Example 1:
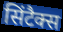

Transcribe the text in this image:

सिंटैक्स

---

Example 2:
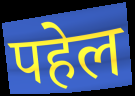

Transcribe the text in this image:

पहेल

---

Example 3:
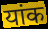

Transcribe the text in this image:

यांक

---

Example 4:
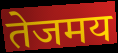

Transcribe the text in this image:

तेजमय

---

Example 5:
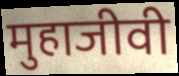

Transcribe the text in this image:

मुहाजीवी